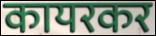
कायरकर